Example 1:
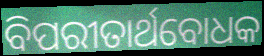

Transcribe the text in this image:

ବିପରୀତାର୍ଥବୋଧକ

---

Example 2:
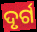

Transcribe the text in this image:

ଦୃର୍ଗ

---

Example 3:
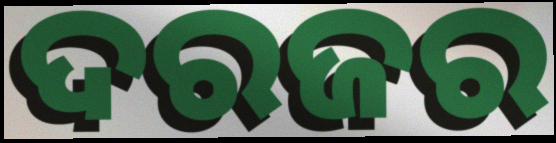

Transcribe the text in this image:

ଦରଜର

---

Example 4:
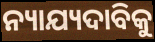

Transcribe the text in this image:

ନ୍ୟାଯ୍ୟଦାବିକୁ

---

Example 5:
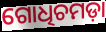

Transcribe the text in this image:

ଗୋଧିଚମଡ଼ା